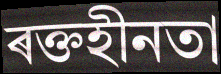
ৰক্তহীনতা